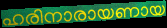
ഹരിനാരായണായ